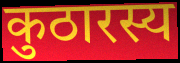
कुठारस्य